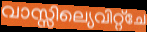
വാസ്സില്യെവിറ്റ്ചേ